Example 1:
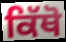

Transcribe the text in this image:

ਕਿੱਥੋ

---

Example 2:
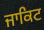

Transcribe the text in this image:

ਜਾਕਿਟ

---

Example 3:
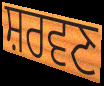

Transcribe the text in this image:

ਸ਼ਰਵਣ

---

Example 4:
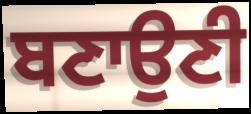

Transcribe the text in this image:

ਬਣਾਉਣੀ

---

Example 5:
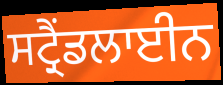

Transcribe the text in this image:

ਸਟ੍ਰੈਂਡਲਾਈਨ